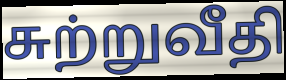
சுற்றுவீதி